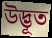
উদ্ভূত